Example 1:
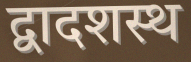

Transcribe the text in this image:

द्वादशस्थ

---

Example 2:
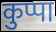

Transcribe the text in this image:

कुप्पा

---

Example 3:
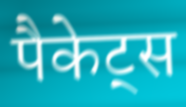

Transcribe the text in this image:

पैकेट्स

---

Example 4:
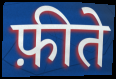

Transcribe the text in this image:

फ़ीते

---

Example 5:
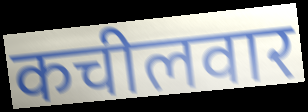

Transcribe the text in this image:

कचीलवार